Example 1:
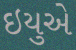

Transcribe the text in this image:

ઇયુએ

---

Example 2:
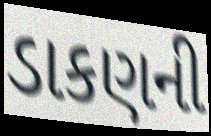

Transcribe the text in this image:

ડાકણની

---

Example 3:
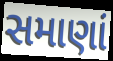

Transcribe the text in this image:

સમાણાં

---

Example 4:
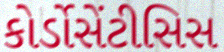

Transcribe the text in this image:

કોર્ડોસેંટીસિસ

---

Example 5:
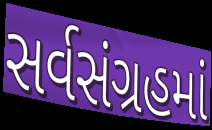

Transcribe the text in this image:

સર્વસંગ્રહમાં